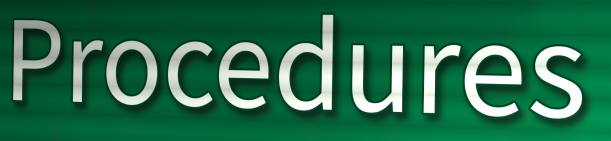
Procedures